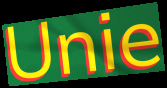
Unie